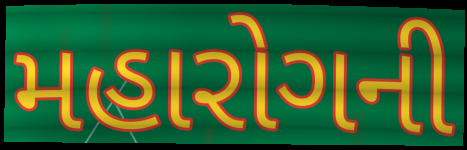
મહારોગની